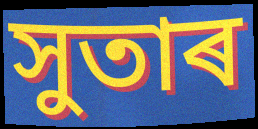
সুতাৰ